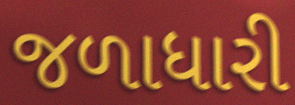
જળાધારી